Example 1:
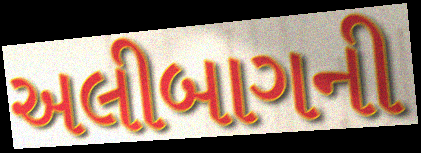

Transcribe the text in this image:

અલીબાગની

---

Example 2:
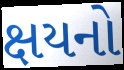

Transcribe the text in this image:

ક્ષયનો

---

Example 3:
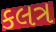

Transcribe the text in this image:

કલત્ર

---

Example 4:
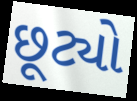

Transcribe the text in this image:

છૂટ્યો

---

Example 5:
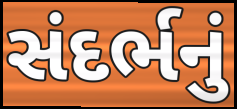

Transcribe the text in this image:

સંદર્ભનું